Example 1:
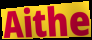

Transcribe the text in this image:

Aithe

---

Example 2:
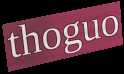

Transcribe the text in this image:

thoguo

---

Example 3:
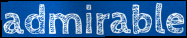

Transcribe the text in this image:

admirable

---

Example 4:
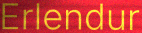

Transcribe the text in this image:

Erlendur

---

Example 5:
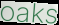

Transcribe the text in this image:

oaks